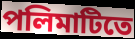
পলিমাটিতে